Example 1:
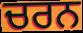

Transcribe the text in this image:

ਚਰਨ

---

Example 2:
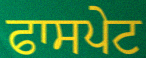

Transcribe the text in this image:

ਫਾਸਪੇਟ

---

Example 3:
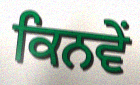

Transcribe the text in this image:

ਕਿਨਵੇਂ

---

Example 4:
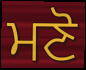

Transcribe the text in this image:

ਮਣੋ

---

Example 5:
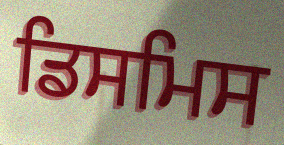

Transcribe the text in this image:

ਡਿਸਮਿਸ